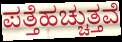
ಪತ್ತೆಹಚ್ಚುತ್ತವೆ